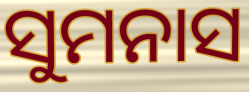
ସୁମନାସ